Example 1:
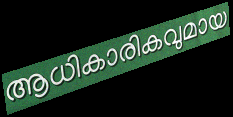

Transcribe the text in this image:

ആധികാരികവുമായ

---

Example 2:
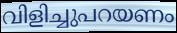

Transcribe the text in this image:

വിളിച്ചുപറയണം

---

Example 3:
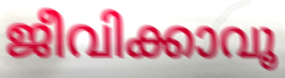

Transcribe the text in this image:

ജീവിക്കാവൂ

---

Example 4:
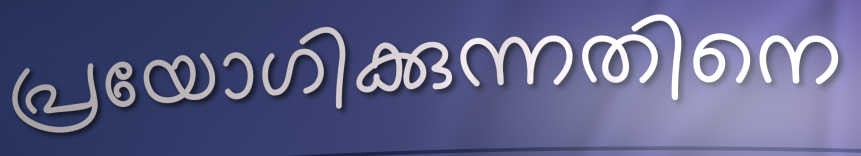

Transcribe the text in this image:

പ്രയോഗിക്കുന്നതിനെ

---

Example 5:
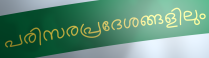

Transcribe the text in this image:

പരിസരപ്രദേശങ്ങളിലും